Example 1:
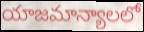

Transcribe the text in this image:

యాజమాన్యాలలో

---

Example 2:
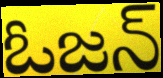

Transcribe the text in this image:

ఓజన్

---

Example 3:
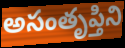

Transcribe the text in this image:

అసంతృప్తిని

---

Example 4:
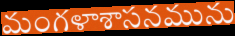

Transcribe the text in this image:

మంగళాశాసనమును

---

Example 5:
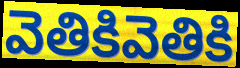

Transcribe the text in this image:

వెతికివెతికి